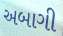
અબાગી